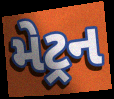
મેટ્રન